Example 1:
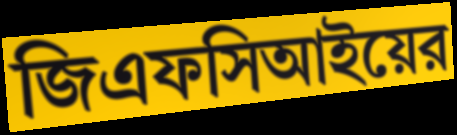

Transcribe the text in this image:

জিএফসিআইয়ের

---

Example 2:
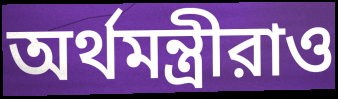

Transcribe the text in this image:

অর্থমন্ত্রীরাও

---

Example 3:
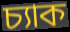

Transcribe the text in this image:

চ্যাক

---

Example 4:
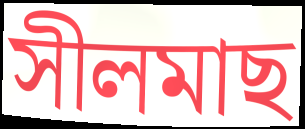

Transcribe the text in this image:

সীলমাছ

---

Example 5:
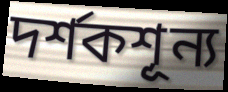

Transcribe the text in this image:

দর্শকশূন্য